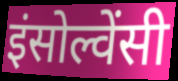
इंसोल्वेंसी